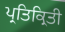
ਪ੍ਰਤਿਕ੍ਰਿਤੀ